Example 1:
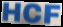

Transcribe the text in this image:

HCF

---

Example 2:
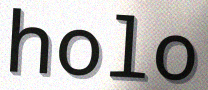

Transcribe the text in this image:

holo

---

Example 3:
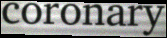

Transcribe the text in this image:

coronary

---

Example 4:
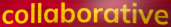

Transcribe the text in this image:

collaborative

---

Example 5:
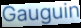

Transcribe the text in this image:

Gauguin